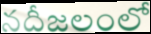
నదీజలంలో